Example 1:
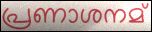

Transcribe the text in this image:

പ്രണാശനമ്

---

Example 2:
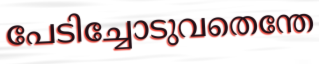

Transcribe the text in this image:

പേടിച്ചോടുവതെന്തേ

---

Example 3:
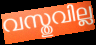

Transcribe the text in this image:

വസ്തുവില്ല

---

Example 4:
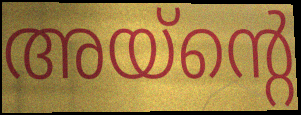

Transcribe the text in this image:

അയ്ന്റെ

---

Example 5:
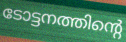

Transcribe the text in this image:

ടോട്ടനത്തിന്റെ